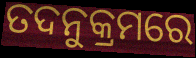
ତଦନୁକ୍ରମରେ